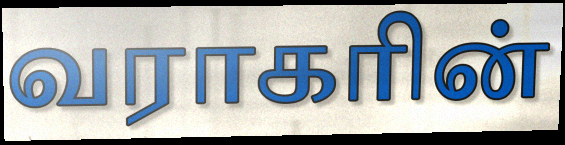
வராகரின்